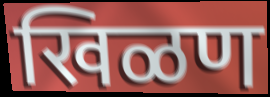
खिळण